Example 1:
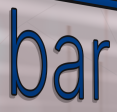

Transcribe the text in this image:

bar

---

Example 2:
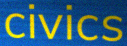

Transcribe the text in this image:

civics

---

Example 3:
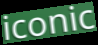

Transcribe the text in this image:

iconic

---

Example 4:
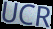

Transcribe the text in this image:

UCR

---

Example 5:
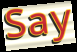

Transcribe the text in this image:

Say